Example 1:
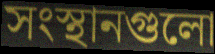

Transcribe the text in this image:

সংস্থানগুলো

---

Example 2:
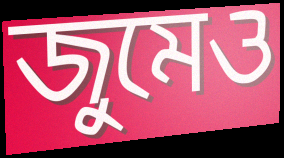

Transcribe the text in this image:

জুমেও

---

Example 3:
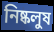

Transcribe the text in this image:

নিষ্কলুষ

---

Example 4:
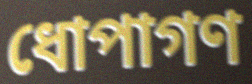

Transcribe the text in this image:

ধোপাগণ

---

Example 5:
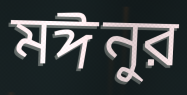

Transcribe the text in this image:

মঈনুর